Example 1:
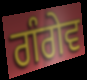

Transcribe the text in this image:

ਗੰਗੇਵ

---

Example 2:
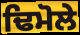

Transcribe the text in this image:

ਢਿਮੋਲੇ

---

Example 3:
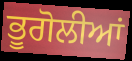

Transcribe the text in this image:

ਭੂਗੋਲੀਆਂ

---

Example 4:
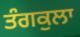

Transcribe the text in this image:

ਤੰਗਕੁਲਾ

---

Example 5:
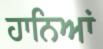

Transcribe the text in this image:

ਹਾਨਿਆਂ